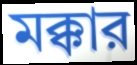
মক্কার